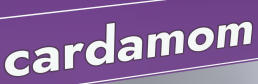
cardamom